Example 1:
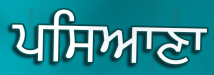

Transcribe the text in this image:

ਪਸਿਆਣਾ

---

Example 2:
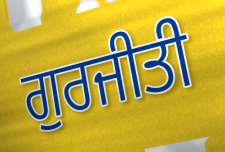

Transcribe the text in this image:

ਗੁਰਜੀਤੀ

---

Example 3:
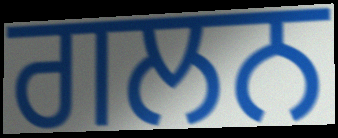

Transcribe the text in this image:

ਗਲਨ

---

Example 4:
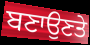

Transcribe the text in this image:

ਬਣਾਉਣਤੇ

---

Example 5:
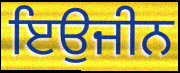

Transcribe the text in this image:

ਇਉਜੀਨ